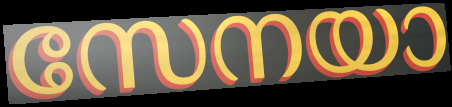
സേനയാ